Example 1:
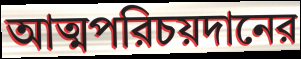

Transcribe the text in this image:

আত্মপরিচয়দানের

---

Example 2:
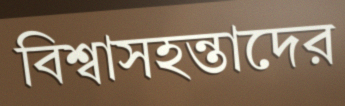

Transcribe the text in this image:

বিশ্বাসহন্তাদের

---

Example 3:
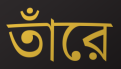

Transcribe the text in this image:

তাঁরে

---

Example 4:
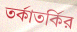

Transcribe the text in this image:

তর্কাতর্কির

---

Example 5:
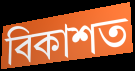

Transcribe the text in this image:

বিকাশত